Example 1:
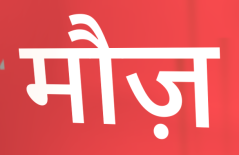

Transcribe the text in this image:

मौज़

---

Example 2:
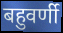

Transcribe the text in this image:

बहुवर्णी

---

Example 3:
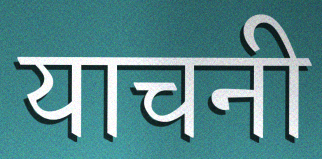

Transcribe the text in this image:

याचनी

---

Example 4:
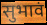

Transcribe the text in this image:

सुभावं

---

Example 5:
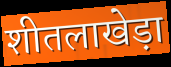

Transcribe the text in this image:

शीतलाखेड़ा